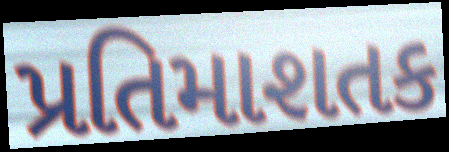
પ્રતિમાશતક